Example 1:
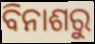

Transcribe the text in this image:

ବିନାଶରୁ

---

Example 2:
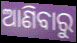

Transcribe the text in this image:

ଆଣିବାରୁ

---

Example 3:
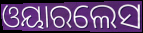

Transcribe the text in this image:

ଓୟାରଲେସ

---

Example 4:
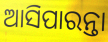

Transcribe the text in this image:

ଆସିପାରନ୍ତା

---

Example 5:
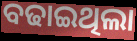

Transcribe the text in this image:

ବଢାଇଥିଲା